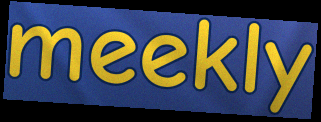
meekly